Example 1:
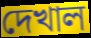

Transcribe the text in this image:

দেখাল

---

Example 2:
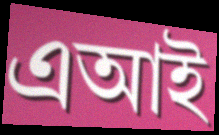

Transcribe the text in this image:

এআই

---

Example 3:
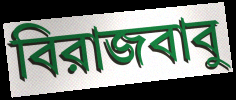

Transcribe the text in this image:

বিরাজবাবু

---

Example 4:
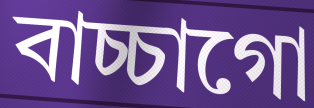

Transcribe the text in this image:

বাচ্চাগো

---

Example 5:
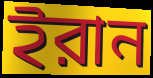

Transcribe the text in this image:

ইরান